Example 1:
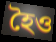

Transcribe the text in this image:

হৈও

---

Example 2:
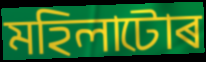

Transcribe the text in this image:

মহিলাটোৰ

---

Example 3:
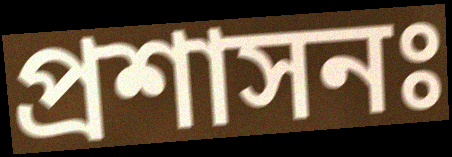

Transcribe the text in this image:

প্ৰশাসনঃ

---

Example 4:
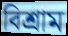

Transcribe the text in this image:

বিশ্ৰাম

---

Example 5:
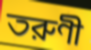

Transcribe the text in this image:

তৰুণী